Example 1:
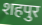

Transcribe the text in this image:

शहपुर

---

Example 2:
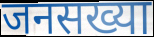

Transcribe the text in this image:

जनसख्या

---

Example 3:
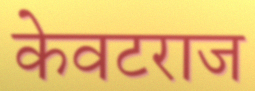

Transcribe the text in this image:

केवटराज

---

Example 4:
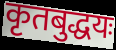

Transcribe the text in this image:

कृतबुद्धयः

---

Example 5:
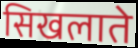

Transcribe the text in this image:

सिखलाते